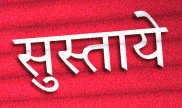
सुस्ताये